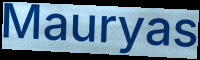
Mauryas